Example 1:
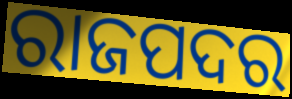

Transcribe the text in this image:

ରାଜପଦର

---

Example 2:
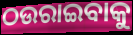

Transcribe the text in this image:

ଠଉରାଇବାକୁ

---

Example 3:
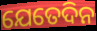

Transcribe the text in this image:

ଯେତେଦିନ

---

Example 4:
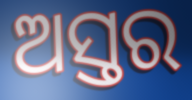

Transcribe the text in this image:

ଅସ୍ତର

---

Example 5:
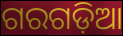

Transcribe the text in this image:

ଗରଗଡ଼ିଆ